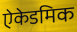
ऐकेडमिक